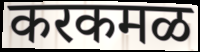
करकमळ